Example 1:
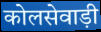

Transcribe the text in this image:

कोलसेवाड़ी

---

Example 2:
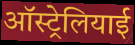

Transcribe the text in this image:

ऑस्‍ट्रेलियाई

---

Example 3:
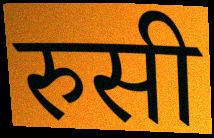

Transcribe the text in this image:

रुसी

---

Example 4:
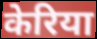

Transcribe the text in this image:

केरिया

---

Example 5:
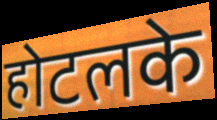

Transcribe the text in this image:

होटलके